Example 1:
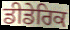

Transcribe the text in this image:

ਡੀਡੇਰਿਕ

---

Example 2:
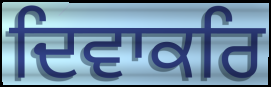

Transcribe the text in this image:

ਦਿਵਾਕਰਿ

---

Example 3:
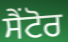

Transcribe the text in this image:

ਸੈਂਟੋਰ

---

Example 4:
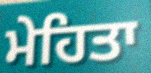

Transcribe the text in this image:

ਮੇਹਿਤਾ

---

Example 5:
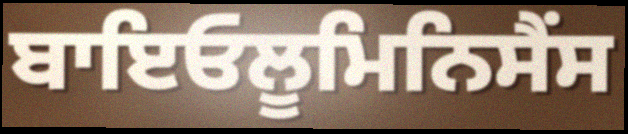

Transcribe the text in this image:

ਬਾਇਓਲੂਮਿਨਿਸੈਂਸ